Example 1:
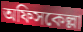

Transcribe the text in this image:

অফিসকেল্লা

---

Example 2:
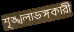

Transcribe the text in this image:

শৃঙ্খলাভঙ্গকারী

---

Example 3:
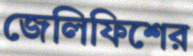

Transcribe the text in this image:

জেলিফিশের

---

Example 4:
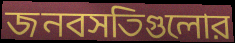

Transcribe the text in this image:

জনবসতিগুলোর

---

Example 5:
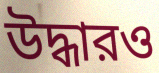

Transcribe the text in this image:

উদ্ধারও